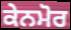
ਕੇਨਮੋਰ